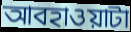
আবহাওয়াটা